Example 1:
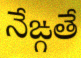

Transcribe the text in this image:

నేఙ్గతే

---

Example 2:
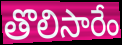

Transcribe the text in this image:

తొలిసారేం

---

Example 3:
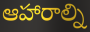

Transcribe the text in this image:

ఆహారాల్ని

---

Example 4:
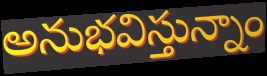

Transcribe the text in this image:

అనుభవిస్తున్నాం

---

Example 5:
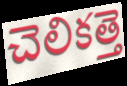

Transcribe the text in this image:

చెలికత్తె